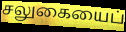
சலுகையைப்